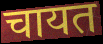
चायत